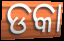
ଡକା